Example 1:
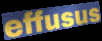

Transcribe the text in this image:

effusus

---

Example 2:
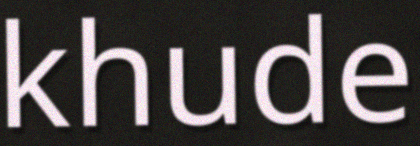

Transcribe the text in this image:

khude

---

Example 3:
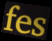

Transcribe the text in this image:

fes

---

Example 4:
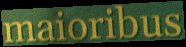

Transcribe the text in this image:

maioribus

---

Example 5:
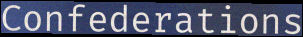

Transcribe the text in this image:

Confederations